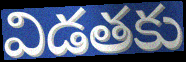
విడతకు